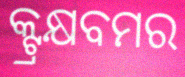
କ୍ଟ୍ରକ୍ଷବମର